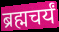
ब्रह्मचर्यं